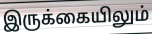
இருக்கையிலும்